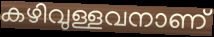
കഴിവുള്ളവനാണ്